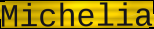
Michelia